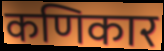
कणिकार